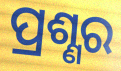
ପ୍ରଶ୍ଣର